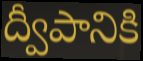
ద్వీపానికి